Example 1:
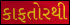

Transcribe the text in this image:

કાફતોરથી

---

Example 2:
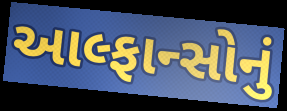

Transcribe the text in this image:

આલ્ફાન્સોનું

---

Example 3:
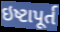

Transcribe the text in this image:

ઇષ્ટાપૂર્ત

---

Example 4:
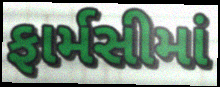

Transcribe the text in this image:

ફાર્મસીમાં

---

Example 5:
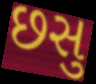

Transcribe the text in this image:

છસુ